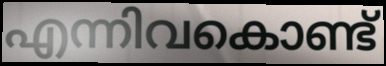
എന്നിവകൊണ്ട്